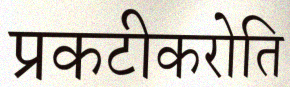
प्रकटीकरोति